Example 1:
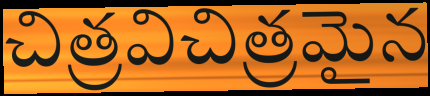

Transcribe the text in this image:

చిత్రవిచిత్రమైన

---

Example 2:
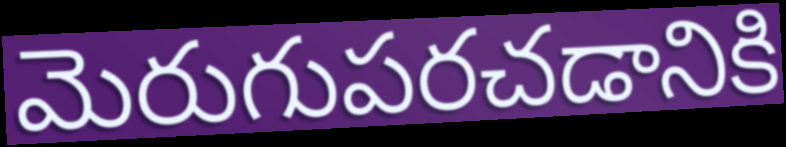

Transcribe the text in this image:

మెరుగుపరచడానికి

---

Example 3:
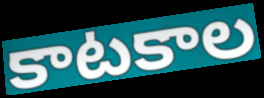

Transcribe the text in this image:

కాటకాల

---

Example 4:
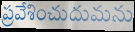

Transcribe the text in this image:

ప్రవేశించుదుమను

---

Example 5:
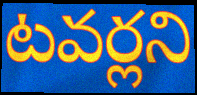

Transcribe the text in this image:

టవర్లని